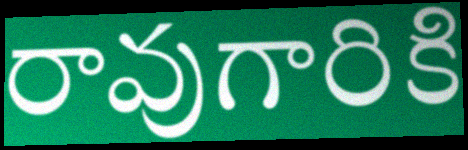
రావుగారికి